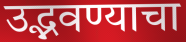
उद्भवण्याचा